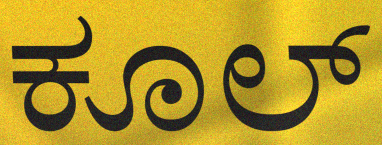
ಕೂಲ್